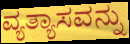
ವ್ಯತ್ಯಾಸವನ್ನು